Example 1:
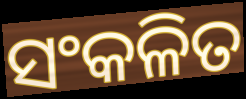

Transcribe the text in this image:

ସଂକଳିତ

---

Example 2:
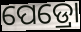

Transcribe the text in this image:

ପେଡ୍ରୋ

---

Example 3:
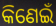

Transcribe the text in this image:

କିଣେଇଁ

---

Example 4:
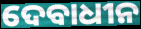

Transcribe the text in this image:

ଦେବାଧୀନ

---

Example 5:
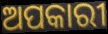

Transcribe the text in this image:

ଅପକାରୀ